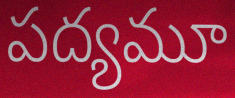
పద్యమూ